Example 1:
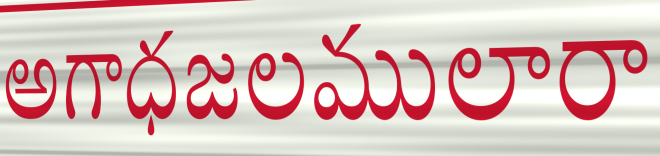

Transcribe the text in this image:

అగాధజలములారా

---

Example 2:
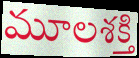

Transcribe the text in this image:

మూలశక్తి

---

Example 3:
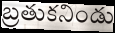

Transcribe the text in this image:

బ్రతుకనిండు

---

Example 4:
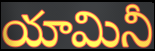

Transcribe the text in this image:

యామినీ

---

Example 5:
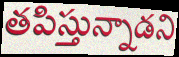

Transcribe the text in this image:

తపిస్తున్నాడని